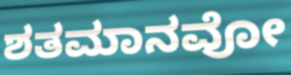
ಶತಮಾನವೋ